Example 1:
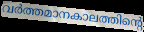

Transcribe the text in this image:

വർത്തമാനകാലത്തിന്റെ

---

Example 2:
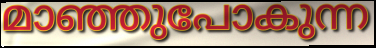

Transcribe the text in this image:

മാഞ്ഞുപോകുന്ന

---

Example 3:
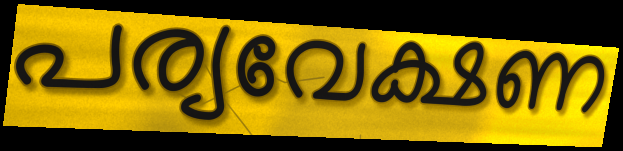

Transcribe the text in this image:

പര്യവേക്ഷണ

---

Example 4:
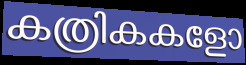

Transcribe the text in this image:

കത്രികകളോ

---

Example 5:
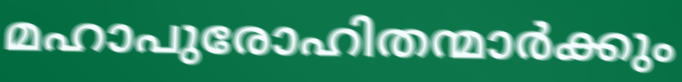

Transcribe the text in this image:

മഹാപുരോഹിതന്മാർക്കും